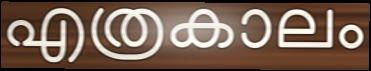
എത്രകാലം